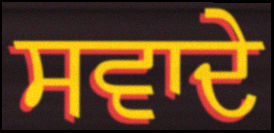
ਸਵਾਦੇ